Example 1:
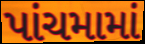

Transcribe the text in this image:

પાંચમામાં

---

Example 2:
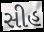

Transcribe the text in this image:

સીહ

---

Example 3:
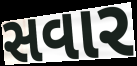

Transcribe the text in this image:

સવાર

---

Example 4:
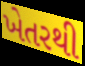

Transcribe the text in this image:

ખેતરથી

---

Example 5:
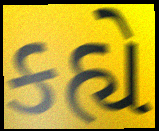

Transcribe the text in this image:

કહ્યે